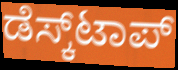
ಡೆಸ್ಕ್‌ಟಾಪ್